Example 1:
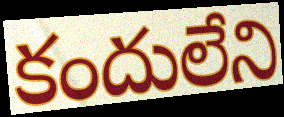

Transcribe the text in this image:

కందులేని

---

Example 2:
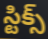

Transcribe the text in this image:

స్టిక్స్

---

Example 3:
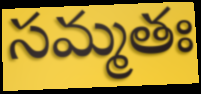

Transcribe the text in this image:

సమ్మతః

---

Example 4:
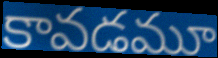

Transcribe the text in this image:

కావడమూ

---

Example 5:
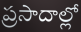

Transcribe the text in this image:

ప్రసాదాల్లో